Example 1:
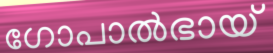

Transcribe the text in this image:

ഗോപാൽഭായ്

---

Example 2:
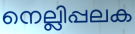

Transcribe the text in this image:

നെല്ലിപ്പലക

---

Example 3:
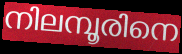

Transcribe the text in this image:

നിലമ്പൂരിനെ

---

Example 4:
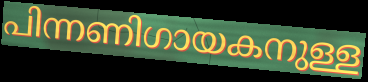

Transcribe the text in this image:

പിന്നണിഗായകനുള്ള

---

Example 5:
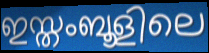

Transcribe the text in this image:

ഇസ്തംബൂളിലെ